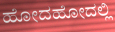
ಹೋದಹೋದಲ್ಲಿ